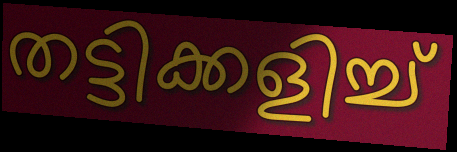
തട്ടിക്കളിച്ച്